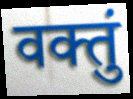
वक्तुं